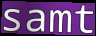
samt